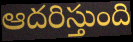
ఆదరిస్తుంది